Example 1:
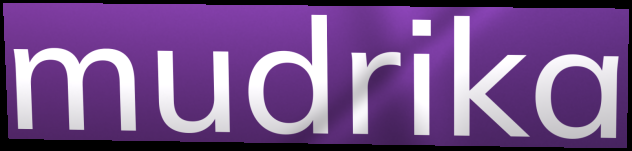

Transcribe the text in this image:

mudrika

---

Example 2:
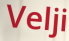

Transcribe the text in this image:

Velji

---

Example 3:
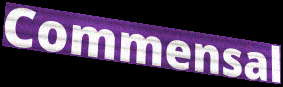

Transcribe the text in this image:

Commensal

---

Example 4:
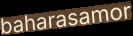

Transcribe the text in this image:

baharasamor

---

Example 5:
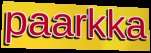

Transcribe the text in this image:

paarkka